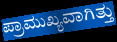
ಪ್ರಾಮುಖ್ಯವಾಗಿತ್ತು